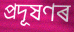
প্ৰদূষণৰ